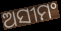
ଅସୀମଂ